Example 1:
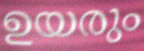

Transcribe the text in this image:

ഉയരും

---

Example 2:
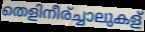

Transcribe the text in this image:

തെളിനീര്ച്ചാലുകള്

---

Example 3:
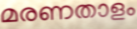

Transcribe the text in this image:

മരണതാളം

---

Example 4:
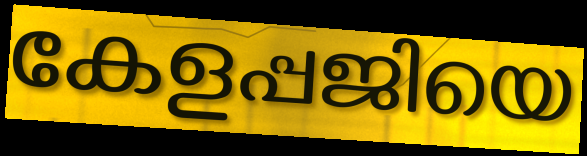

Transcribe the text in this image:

കേളപ്പജിയെ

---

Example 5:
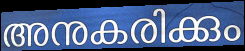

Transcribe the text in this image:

അനുകരിക്കും